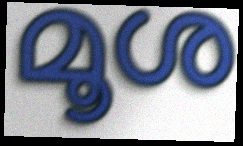
മൂശ